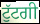
ਟੁੱਟਗੀ